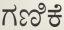
ಗಣಿಕೆ